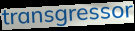
transgressor